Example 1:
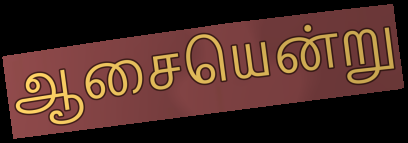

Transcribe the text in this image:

ஆசையென்று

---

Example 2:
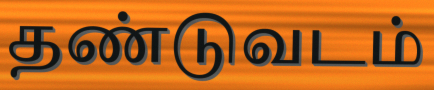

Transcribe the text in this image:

தண்டுவடம்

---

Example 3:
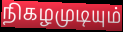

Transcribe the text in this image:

நிகழமுடியும்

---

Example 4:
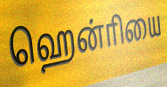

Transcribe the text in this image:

ஹென்ரியை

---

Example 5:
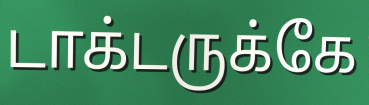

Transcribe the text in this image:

டாக்டருக்கே